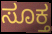
ಸೂಕ್ತ